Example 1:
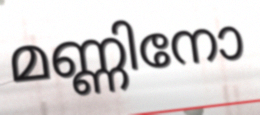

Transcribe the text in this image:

മണ്ണിനോ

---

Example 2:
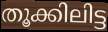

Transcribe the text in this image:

തൂക്കിലിട്ട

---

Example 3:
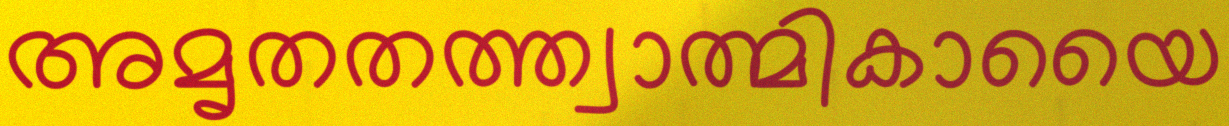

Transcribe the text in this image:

അമൃതതത്ത്വാത്മികായൈ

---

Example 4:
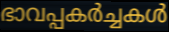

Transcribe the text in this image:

ഭാവപ്പകർച്ചകൾ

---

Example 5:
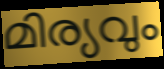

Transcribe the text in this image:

മിര്യവും